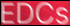
EDCs